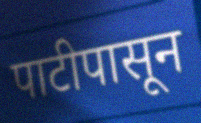
पाटीपासून